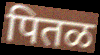
पितळ